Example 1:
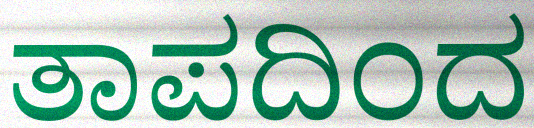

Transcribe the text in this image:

ತಾಪದಿಂದ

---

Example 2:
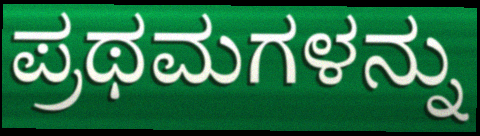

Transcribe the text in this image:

ಪ್ರಥಮಗಳನ್ನು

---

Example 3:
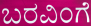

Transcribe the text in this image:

ಬರವಿಂಗೆ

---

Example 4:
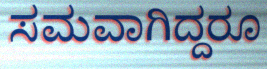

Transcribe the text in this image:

ಸಮವಾಗಿದ್ದರೂ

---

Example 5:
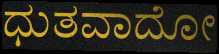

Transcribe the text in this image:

ಧುತವಾದೋ